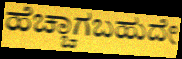
ಹೆಚ್ಚಾಗಬಹುದೇ